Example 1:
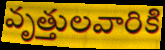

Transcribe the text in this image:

వృత్తులవారికి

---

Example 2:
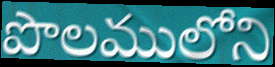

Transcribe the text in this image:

పొలములోని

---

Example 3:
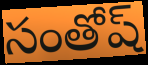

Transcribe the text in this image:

సంతోష్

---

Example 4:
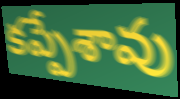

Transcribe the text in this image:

కప్పేశావు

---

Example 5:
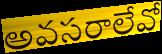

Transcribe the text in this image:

అవసరాలేవో